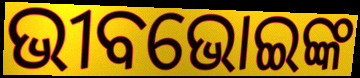
ଭୀବଭୋଇଙ୍କ